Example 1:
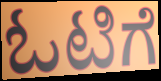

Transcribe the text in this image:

ಓಟಿಗೆ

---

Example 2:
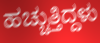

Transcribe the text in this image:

ಹಚ್ಚುತ್ತಿದ್ದಳು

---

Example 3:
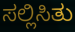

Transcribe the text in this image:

ಸಲ್ಲಿಸಿತು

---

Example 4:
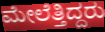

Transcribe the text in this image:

ಮೇಲೆತ್ತಿದ್ದರು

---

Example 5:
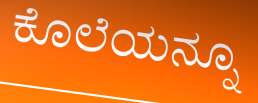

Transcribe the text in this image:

ಕೊಲೆಯನ್ನೂ